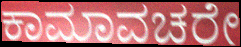
ಕಾಮಾವಚರೇ